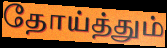
தோய்த்தும்